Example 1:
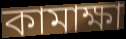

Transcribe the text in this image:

কামাক্ষা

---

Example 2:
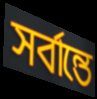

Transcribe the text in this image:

সর্বান্তে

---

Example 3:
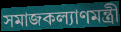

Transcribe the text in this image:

সমাজকল্যাণমন্ত্রী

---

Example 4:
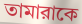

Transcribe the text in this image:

তামারাকে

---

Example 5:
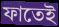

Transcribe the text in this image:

ফাতেই